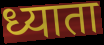
ध्याता